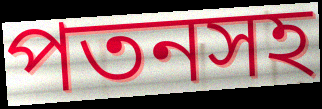
পতনসহ